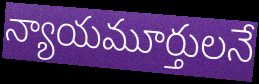
న్యాయమూర్తులనే